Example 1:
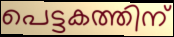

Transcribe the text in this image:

പെട്ടകത്തിന്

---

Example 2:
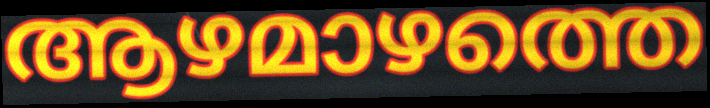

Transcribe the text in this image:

ആഴമാഴത്തെ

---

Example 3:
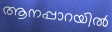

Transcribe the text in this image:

ആനപ്പാറയിൽ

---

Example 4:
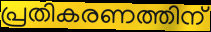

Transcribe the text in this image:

പ്രതികരണത്തിന്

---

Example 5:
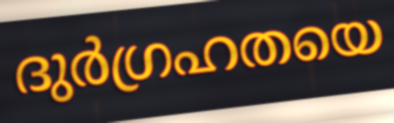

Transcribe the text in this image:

ദുർഗ്രഹതയെ